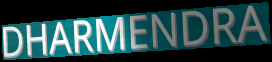
DHARMENDRA